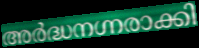
അർദ്ധനഗ്നരാക്കി